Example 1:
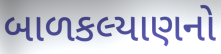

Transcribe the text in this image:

બાળકલ્યાણનો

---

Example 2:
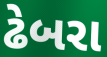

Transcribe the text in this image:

ઢેબરા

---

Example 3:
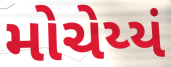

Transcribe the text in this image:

મોચેય્યં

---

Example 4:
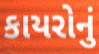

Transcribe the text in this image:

કાયરોનું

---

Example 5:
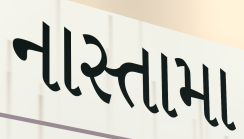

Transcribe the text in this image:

નાસ્તામા